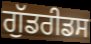
ਗੁੱਡਰੀਡਸ